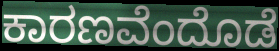
ಕಾರಣವೆಂದೊಡೆ